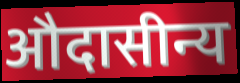
औदासीन्य